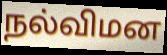
நல்விமன